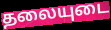
தலையுடை